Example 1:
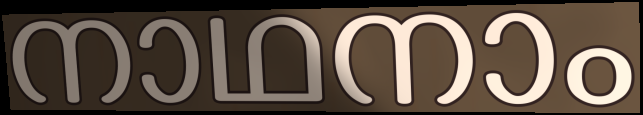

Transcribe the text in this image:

നാഥനാം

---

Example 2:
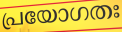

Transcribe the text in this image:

പ്രയോഗതഃ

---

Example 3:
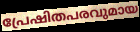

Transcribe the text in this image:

പ്രേഷിതപരവുമായ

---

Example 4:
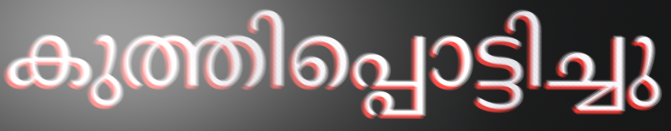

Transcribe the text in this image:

കുത്തിപ്പൊട്ടിച്ചു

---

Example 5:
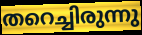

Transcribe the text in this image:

തറെച്ചിരുന്നു